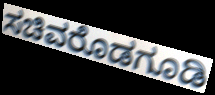
ಸಚಿವರೊಡಗೂಡಿ